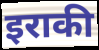
इराकी